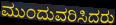
ಮುಂದುವರಿಸಿದರು